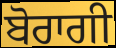
ਬੋਰਾਗੀ